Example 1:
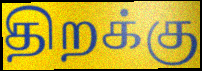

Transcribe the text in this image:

திறக்கு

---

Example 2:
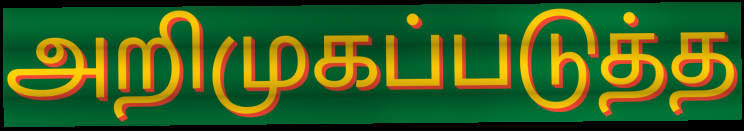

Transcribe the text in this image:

அறிமுகப்படுத்த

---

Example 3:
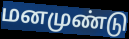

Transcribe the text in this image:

மனமுண்டு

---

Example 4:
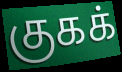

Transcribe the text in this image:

குகக்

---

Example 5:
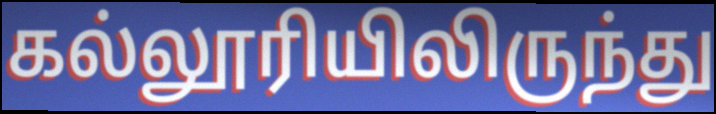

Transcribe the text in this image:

கல்லூரியிலிருந்து